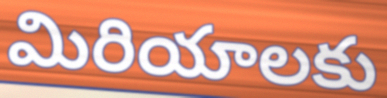
మిరియాలకు